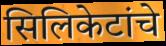
सिलिकेटांचे